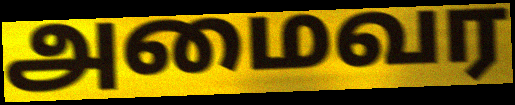
அமைவர